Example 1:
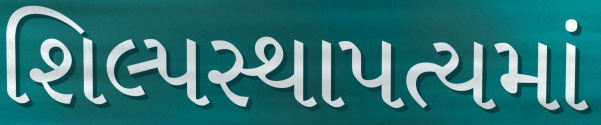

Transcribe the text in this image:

શિલ્પસ્થાપત્યમાં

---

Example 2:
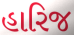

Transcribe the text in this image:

હારિજ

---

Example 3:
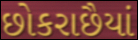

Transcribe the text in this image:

છોકરાછૈયાં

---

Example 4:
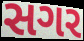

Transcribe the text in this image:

સગર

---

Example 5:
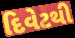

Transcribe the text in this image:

દિવેટથી